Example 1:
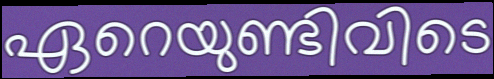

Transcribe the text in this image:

ഏറെയുണ്ടിവിടെ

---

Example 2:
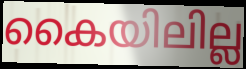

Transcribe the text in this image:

കൈയിലില്ല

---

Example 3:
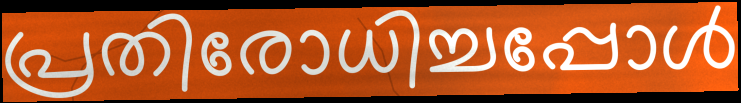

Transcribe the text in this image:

പ്രതിരോധിച്ചപ്പോൾ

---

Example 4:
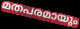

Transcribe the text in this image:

മതപരമായും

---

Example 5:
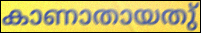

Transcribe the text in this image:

കാണാതായതു്